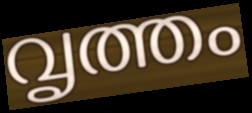
വൃത്തം